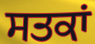
ਸਤਕਾਂ